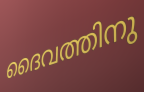
ദൈവത്തിനു